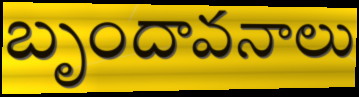
బృందావనాలు